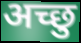
अच्छु